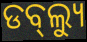
ଡବ୍‌ଲ୍ୟୁ